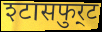
श्टासफुर्ट